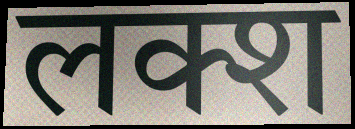
लक्श